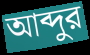
আব্দুর